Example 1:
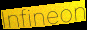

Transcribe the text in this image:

Infineon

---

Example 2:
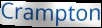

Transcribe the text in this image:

Crampton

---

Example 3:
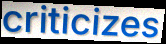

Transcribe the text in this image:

criticizes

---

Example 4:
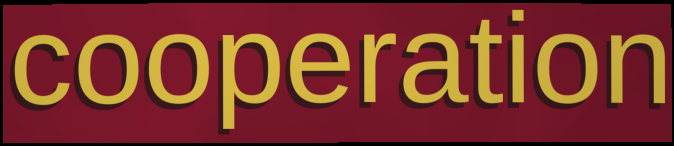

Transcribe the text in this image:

cooperation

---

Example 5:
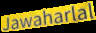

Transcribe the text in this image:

Jawaharlal